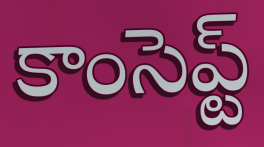
కాంసెప్ట్